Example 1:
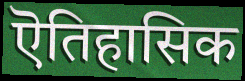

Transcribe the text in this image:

ऎतिहासिक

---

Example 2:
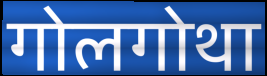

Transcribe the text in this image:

गोलगोथा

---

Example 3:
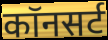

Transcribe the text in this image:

कॉनसर्ट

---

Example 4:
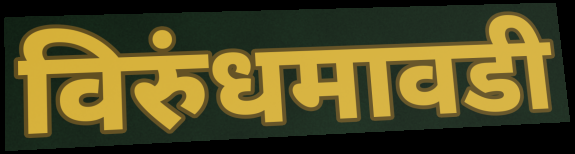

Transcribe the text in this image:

विरुंधमावडी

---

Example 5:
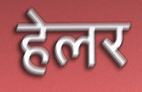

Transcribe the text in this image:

हेलर